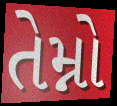
તેમ્નો